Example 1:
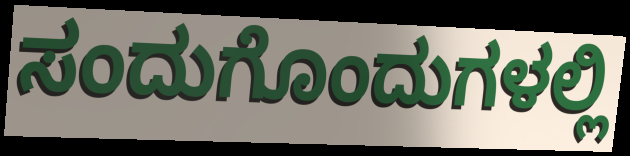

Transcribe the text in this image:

ಸಂದುಗೊಂದುಗಳಲ್ಲಿ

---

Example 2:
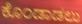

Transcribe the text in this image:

ಕೊಂಡಾಡಲು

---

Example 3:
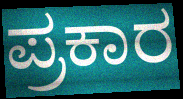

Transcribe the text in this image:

ಪ್ರಕಾರ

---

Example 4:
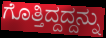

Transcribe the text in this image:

ಗೊತ್ತಿದ್ದದ್ದನ್ನು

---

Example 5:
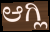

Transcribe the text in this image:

ಆಗ್ಲಿ